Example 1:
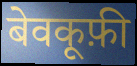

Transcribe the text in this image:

बेवकूफ़ी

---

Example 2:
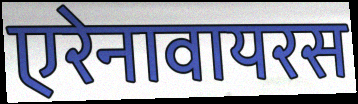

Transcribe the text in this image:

एरेनावायरस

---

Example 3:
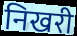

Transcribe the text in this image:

निखरी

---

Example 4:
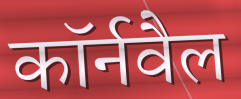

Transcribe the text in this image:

कॉर्नवैल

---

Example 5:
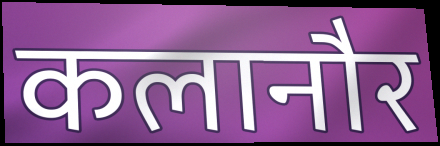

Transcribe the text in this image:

कलानौर